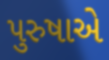
પુરુષાએ